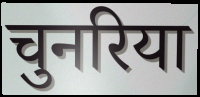
चुनरिया